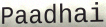
Paadhai